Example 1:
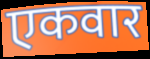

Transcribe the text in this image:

एकवार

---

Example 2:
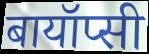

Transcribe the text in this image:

बायॉप्सी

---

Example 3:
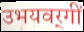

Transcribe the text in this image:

उभयवर्गीं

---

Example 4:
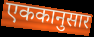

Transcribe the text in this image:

एककानुसार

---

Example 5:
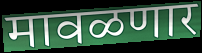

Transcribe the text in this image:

मावळणार